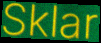
Sklar